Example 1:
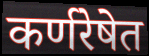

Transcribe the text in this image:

कर्णरेषेत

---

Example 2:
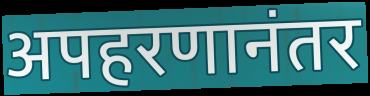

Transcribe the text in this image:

अपहरणानंतर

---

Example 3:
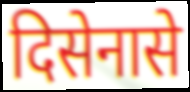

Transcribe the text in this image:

दिसेनासे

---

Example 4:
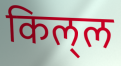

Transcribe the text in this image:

किल्ल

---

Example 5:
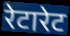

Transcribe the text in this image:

रेटारेट